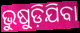
ଭୁଷୁଡ଼ିଯିବା